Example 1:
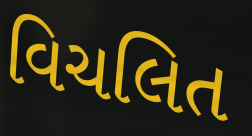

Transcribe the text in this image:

વિચલિત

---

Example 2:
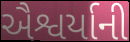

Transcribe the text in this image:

ઐશ્વર્યાની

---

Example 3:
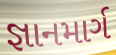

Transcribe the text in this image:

જ્ઞાનમાર્ગ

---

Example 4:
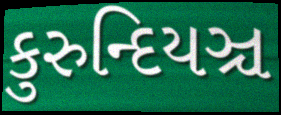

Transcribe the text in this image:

કુરુન્દિયઞ્ચ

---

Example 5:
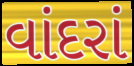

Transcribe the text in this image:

વાંદરાં